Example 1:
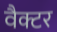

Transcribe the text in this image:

वैक्टर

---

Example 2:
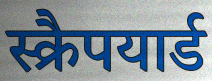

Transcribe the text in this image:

स्क्रैपयार्ड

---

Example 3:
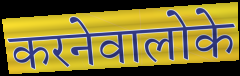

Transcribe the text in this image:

करनेवालोके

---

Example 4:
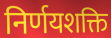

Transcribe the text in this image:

निर्णयशक्ति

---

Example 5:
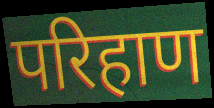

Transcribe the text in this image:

परिहाण